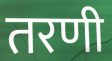
तरणी